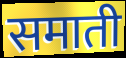
समाती